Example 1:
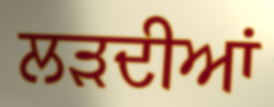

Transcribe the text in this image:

ਲੜਦੀਆਂ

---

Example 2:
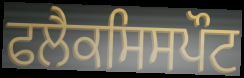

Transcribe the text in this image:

ਫਲੈਕਸਿਸਪੌਟ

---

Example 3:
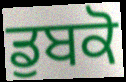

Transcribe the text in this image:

ਡੁਬਕੋ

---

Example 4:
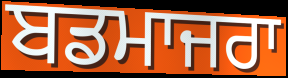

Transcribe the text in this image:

ਬਡਮਾਜਰਾ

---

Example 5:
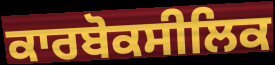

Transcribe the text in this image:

ਕਾਰਬੋਕਸੀਲਿਕ